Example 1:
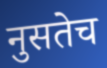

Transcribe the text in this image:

नुसतेच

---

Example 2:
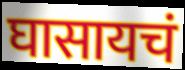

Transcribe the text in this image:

घासायचं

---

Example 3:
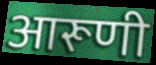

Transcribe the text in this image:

आरूणी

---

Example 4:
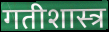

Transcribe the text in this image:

गतीशास्त्र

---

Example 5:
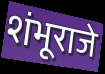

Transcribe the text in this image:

शंभूराजे